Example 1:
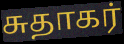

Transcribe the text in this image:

சுதாகர்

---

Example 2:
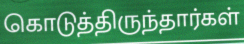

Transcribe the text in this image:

கொடுத்திருந்தார்கள்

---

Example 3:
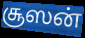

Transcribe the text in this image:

சூஸன்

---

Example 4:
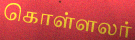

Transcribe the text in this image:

கொள்ளலர்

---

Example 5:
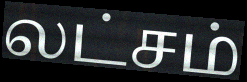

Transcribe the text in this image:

லட்சம்